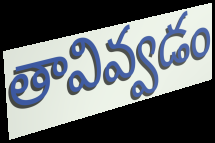
తావివ్వడం